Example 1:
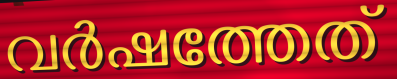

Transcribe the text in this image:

വർഷത്തേത്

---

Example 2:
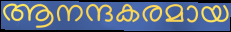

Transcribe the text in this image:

ആനന്ദകരമായ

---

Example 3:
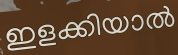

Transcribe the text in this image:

ഇളക്കിയാൽ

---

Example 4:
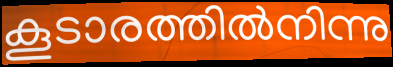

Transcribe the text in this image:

കൂടാരത്തിൽനിന്നു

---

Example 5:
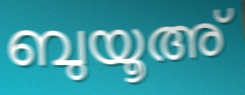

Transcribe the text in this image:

ബുയൂഅ്